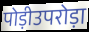
पोड़ीउपरोड़ा